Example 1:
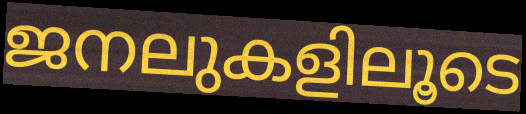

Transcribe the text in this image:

ജനലുകളിലൂടെ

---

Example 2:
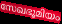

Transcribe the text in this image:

സേഖഭൂമിയം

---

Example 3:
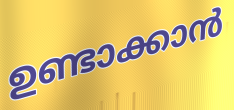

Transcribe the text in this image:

ഉണ്ടാക്കാൻ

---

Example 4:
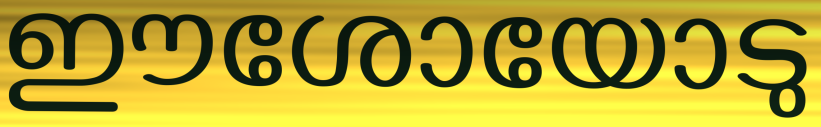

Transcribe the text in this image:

ഈശോയോടു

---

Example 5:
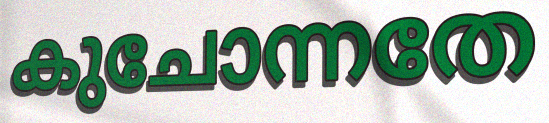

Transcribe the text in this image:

കുചോന്നതേ